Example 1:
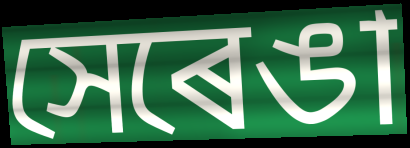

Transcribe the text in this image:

সেৰেঙা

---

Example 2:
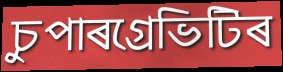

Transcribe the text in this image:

চুপাৰগ্ৰেভিটিৰ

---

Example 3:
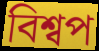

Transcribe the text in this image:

বিশ্বপ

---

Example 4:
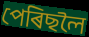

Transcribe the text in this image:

পেৰিছলৈ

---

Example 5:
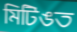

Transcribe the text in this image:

মিটিঙত